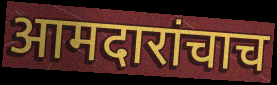
आमदारांचाच